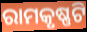
ରାମକୃଷ୍ଣଟି